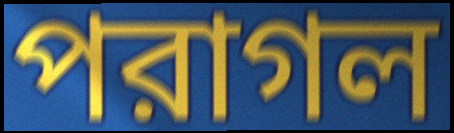
পরাগল